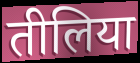
तीलिया